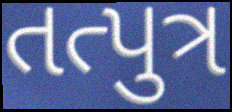
તત્પુત્ર